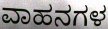
ವಾಹನಗಳ